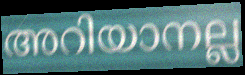
അറിയാനല്ല